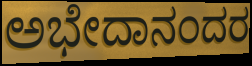
ಅಭೇದಾನಂದರ